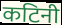
कटिनी